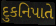
દુકનિપાતે